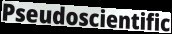
Pseudoscientific